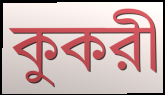
কুকরী